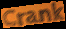
Crank